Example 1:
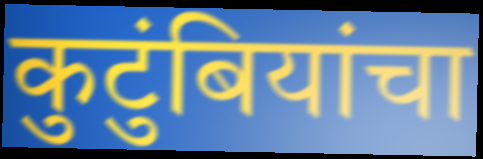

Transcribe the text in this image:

कुटुंबियांचा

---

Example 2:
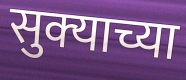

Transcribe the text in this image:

सुक्‍याच्या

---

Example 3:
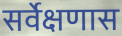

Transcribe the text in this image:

सर्वेक्षणास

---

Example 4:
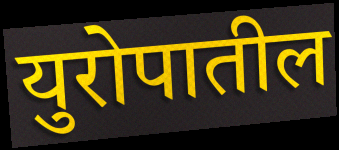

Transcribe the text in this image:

युरोपातील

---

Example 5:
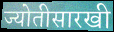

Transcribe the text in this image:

ज्योतीसारखी